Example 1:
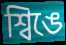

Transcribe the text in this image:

শ্বিঙে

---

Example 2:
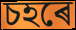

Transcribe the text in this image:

চহৰে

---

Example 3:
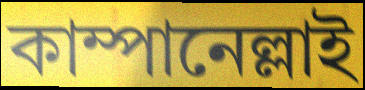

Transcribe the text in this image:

কাম্পানেল্লাই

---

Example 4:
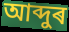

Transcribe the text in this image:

আব্দুৰ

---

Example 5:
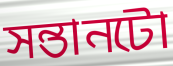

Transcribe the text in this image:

সন্তানটো